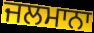
ਜਲਮਾਨਾ